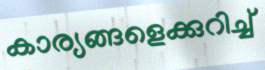
കാര്യങ്ങളെക്കുറിച്ച്